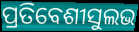
ପ୍ରତିବେଶୀସୁଲଭ